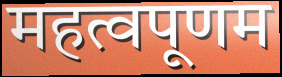
महत्वपूणम